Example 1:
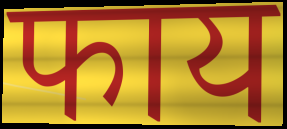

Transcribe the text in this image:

फाय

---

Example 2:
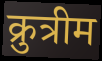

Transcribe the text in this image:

क्रुत्रीम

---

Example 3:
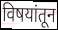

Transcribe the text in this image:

विषयांतून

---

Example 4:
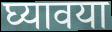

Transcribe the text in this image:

घ्यावया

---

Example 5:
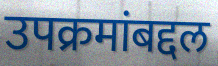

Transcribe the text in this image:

उपक्रमांबद्दल